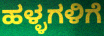
ಹಳ್ಳಗಳಿಗೆ